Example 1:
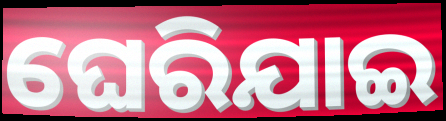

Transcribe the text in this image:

ଘେରିଯାଇ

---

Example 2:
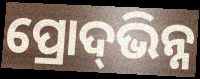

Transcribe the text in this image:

ପ୍ରୋଦ୍‌ଭିନ୍ନ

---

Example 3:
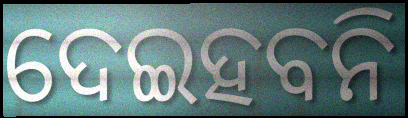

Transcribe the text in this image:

ଦେଇହବନି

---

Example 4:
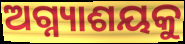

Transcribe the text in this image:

ଅଗ୍ନ୍ୟାଶୟକୁ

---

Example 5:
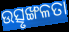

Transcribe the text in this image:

ଉତ୍ସୃଙ୍ଖଳତା